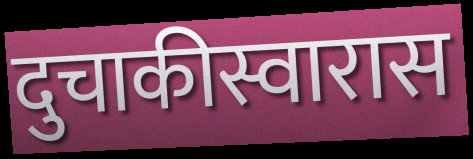
दुचाकीस्वारास